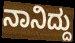
ನಾನಿದ್ದು